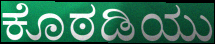
ಕೊಠಡಿಯು